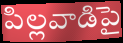
పిల్లవాడిపై